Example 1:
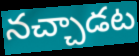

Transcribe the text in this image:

నచ్చాడట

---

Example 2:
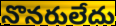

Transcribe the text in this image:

నొనరులేదు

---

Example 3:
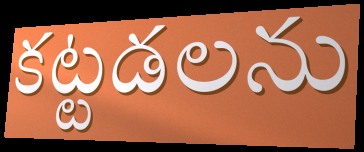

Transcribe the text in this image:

కట్టడలను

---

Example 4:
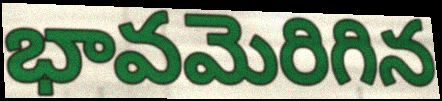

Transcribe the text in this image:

భావమెరిగిన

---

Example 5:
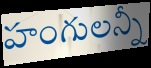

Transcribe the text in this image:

హంగులన్నీ